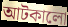
আটকালো